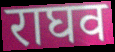
राघव